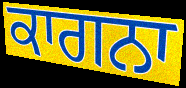
ਕਾਗਨਾ